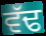
ਵੱਢ